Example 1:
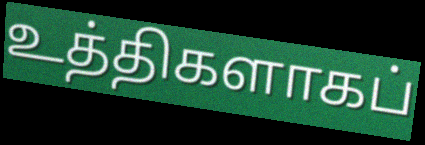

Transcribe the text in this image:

உத்திகளாகப்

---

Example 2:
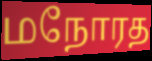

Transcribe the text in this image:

மநோரத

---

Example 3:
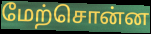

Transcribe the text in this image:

மேற்சொன்ன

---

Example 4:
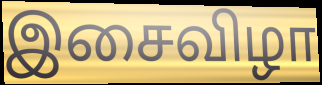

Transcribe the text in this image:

இசைவிழா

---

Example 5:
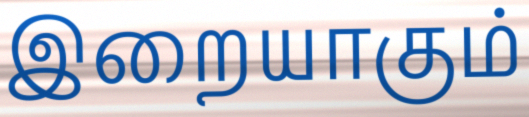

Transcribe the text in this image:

இறையாகும்